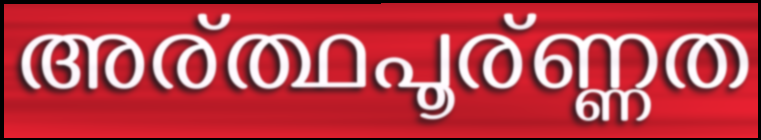
അര്ത്ഥപൂര്ണ്ണത